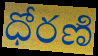
ధోరణి